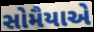
સોમૈયાએ